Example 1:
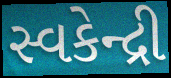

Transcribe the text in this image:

સ્વકેન્દ્રી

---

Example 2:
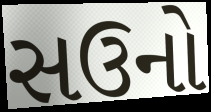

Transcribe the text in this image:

સઉનો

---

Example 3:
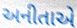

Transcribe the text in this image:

અનીતાએ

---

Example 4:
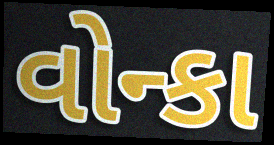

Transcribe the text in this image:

વોન્કા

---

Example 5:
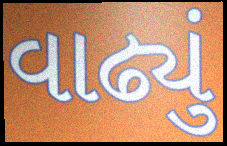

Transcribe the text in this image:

વાઢ્યું